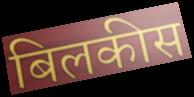
बिलकीस